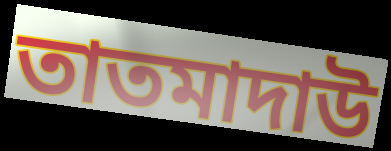
তাতমাদাউ